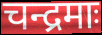
चन्द्रमाः